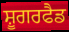
ਸ਼ੂਗਰਫੈਡ